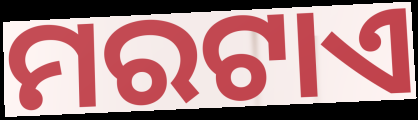
ମରଟାଏ